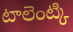
టాలెంట్కి